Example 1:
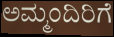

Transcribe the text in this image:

ಅಮ್ಮಂದಿರಿಗೆ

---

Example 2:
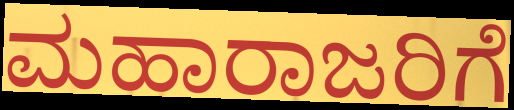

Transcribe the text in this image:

ಮಹಾರಾಜರಿಗೆ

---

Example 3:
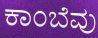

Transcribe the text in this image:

ಕಾಂಬೆವು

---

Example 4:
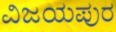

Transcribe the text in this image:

ವಿಜಯಪುರ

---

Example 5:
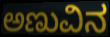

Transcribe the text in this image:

ಅಣುವಿನ